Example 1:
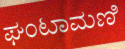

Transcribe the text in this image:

ಘಂಟಾಮಣಿ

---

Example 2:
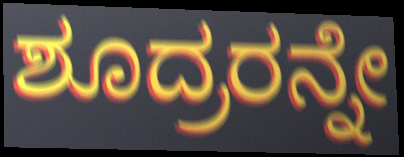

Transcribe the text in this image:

ಶೂದ್ರರನ್ನೇ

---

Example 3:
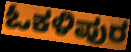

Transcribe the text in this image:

ಓಕಳಿಪುರ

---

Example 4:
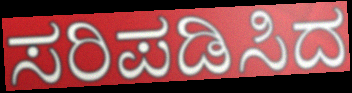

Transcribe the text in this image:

ಸರಿಪಡಿಸಿದ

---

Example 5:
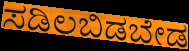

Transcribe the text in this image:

ಸಡಿಲಬಿಡಬೇಡ